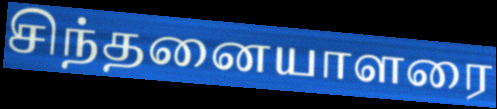
சிந்தனையாளரை